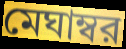
মেঘাম্বর